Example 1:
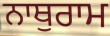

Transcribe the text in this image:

ਨਾਥੁਰਾਮ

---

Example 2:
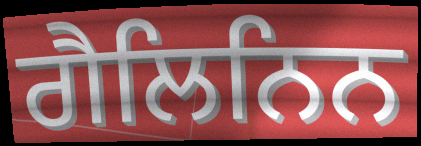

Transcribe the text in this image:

ਗੈਲਿਨਿਨ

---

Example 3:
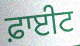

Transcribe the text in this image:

ਫ਼ਾਈਟ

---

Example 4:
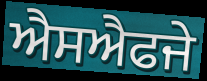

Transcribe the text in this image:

ਐਸਐਫਜੇ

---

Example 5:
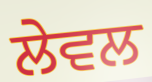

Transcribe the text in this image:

ਲੇਵਲ